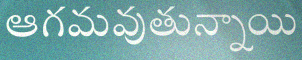
ఆగమవుతున్నాయి